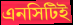
এনসিটিই